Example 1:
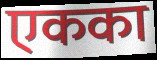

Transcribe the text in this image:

एकका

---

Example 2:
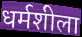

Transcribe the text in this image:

धर्मशीला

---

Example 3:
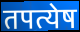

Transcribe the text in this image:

तपत्येष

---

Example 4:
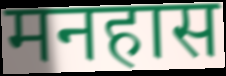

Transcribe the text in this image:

मनहास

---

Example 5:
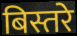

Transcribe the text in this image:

बिस्तरे